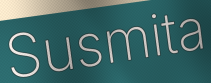
Susmita